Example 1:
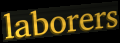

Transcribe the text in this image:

laborers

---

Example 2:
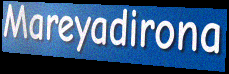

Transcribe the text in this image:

Mareyadirona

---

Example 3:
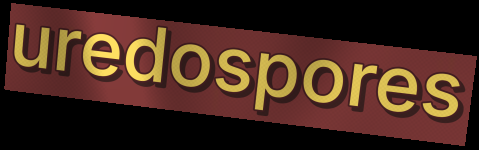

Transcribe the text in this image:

uredospores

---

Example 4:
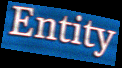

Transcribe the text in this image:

Entity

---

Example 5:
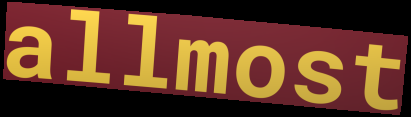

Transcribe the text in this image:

allmost